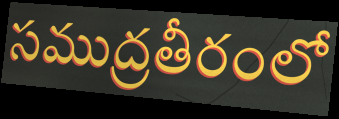
సముద్రతీరంలో